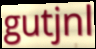
gutjnl